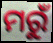
ମରୁଁ